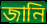
জানি